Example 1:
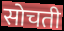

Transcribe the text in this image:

सोचती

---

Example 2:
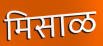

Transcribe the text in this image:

मिसाळ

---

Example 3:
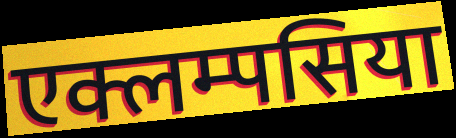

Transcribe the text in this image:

एक्लम्पसिया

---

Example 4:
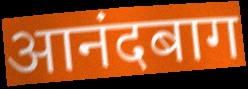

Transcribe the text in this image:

आनंदबाग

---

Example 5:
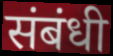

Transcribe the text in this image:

संबंधी